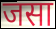
जसा